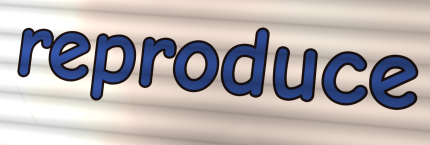
reproduce